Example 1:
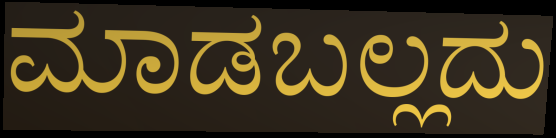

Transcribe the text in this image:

ಮಾಡಬಲ್ಲದು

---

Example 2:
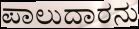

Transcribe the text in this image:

ಪಾಲುದಾರನು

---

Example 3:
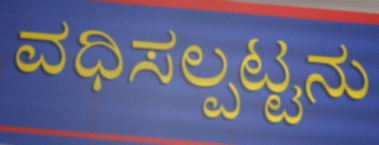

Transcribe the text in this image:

ವಧಿಸಲ್ಪಟ್ಟನು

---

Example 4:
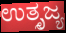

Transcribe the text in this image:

ಉತ್ಸೃಜ್ಯ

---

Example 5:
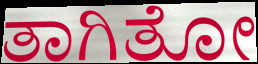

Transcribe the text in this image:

ತಾಗಿತೋ